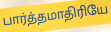
பார்த்தமாதிரியே